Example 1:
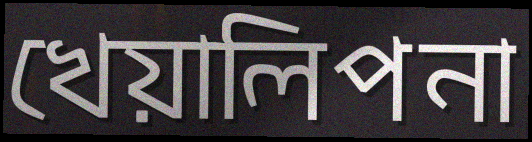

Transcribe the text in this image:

খেয়ালিপনা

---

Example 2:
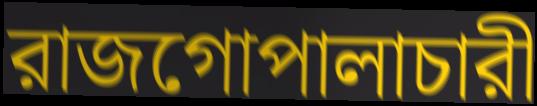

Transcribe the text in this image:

রাজগোপালাচারী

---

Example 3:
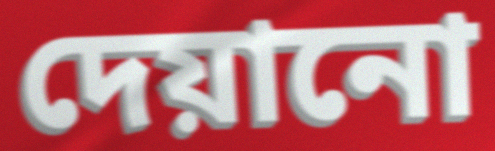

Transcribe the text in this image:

দেয়ানো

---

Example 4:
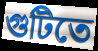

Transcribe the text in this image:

গুটিতে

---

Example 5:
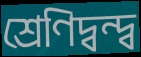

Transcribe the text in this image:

শ্রেণিদ্বন্দ্ব